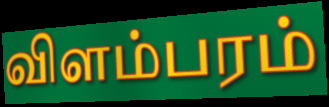
விளம்பரம்